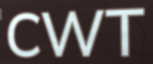
CWT